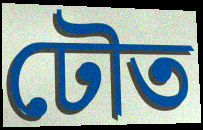
ঢৌত